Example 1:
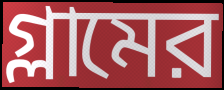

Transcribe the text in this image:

গ্লামের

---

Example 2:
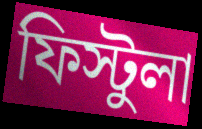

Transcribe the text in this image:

ফিস্টুলা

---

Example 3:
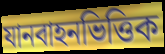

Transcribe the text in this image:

যানবাহনভিত্তিক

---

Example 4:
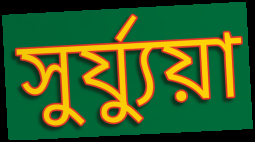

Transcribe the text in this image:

সুর্য্যুয়া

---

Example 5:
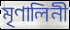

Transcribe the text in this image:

মৃণালিনী